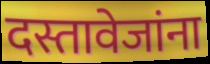
दस्तावेजांना